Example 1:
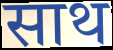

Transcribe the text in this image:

साथ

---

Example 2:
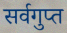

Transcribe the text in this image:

सर्वगुप्त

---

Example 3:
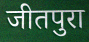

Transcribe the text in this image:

जीतपुरा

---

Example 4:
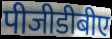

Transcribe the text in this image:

पीजीडीबीए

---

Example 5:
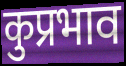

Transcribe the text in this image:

कुप्रभाव